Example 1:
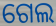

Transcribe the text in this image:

ଗେଲ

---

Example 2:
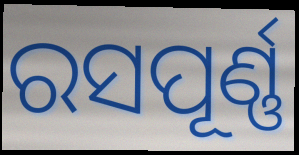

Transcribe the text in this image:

ରସପୂର୍ଣ୍ଣ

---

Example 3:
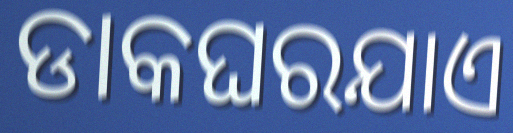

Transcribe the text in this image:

ଡାକଘରଯାଏ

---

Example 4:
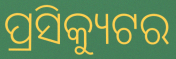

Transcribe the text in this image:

ପ୍ରସିକ୍ୟୁଟର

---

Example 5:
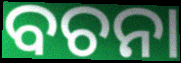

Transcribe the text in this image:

ବଚନା